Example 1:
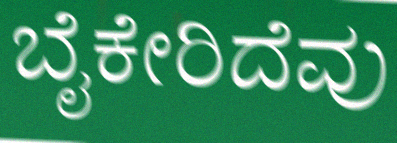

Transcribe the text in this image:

ಬೈಕೇರಿದೆವು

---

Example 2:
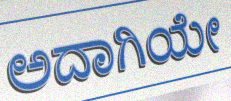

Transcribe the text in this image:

ಅದಾಗಿಯೇ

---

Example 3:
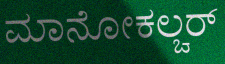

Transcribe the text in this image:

ಮಾನೋಕಲ್ಚರ್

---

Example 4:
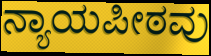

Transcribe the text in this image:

ನ್ಯಾಯಪೀಠವು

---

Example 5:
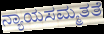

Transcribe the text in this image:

ನ್ಯಾಯಸಮ್ಮತತೆ